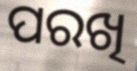
ପରଖି